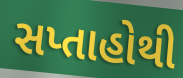
સપ્તાહોથી